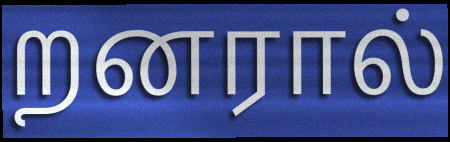
றனரால்